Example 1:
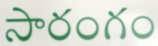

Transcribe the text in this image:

సారంగం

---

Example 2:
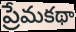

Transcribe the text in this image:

ప్రేమకథా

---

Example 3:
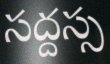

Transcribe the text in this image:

సద్దస్స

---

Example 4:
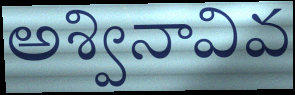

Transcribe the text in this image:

అశ్వినావివ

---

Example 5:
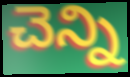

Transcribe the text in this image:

చెన్ని